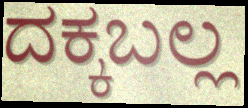
ದಕ್ಕಬಲ್ಲ